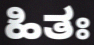
ಹಿತಃ